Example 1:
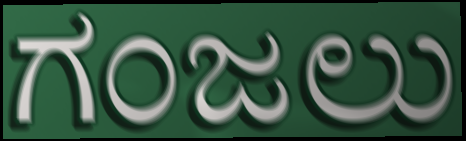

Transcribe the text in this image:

ಗಂಜಲು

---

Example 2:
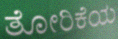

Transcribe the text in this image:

ತೋರಿಕೆಯ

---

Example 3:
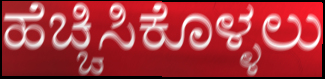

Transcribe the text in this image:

ಹೆಚ್ಚಿಸಿಕೊಳ್ಳಲು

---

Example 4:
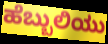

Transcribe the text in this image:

ಹೆಬ್ಬುಲಿಯು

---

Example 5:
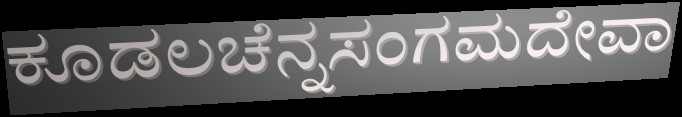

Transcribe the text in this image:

ಕೂಡಲಚೆನ್ನಸಂಗಮದೇವಾ